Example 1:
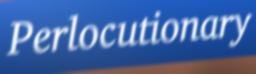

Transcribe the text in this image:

Perlocutionary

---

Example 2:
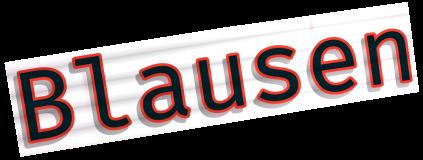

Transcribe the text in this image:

Blausen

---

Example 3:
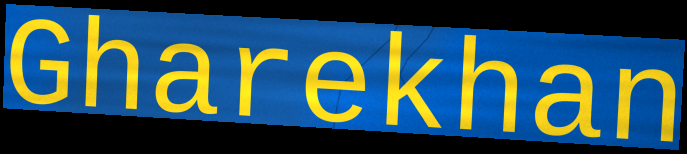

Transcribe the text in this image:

Gharekhan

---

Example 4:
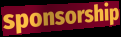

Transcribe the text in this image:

sponsorship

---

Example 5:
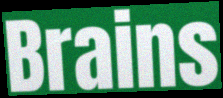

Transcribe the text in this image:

Brains